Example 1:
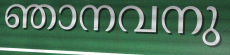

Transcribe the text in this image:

ഞാനവനു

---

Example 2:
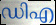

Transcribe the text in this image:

ഡിഎ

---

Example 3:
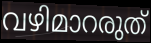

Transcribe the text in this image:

വഴിമാറരുത്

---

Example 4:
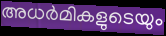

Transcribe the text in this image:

അധർമികളുടെയും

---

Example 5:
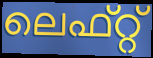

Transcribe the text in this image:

ലെഫ്റ്റ്